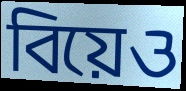
বিয়েও